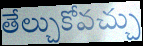
తేల్చుకోవచ్చు